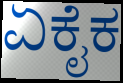
ಏಕೈಕ